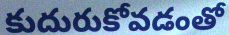
కుదురుకోవడంతో